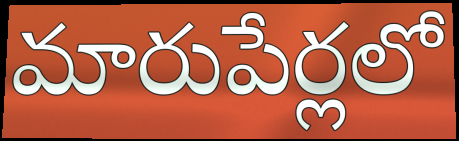
మారుపేర్లలో